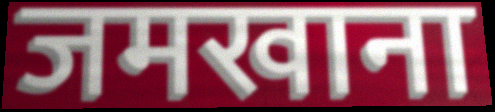
जमखाना